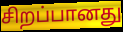
சிறப்பானது